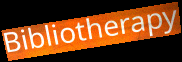
Bibliotherapy